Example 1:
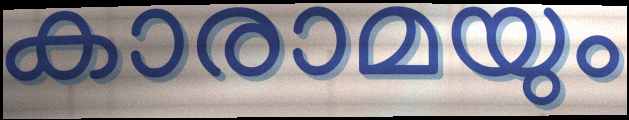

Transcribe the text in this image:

കാരാമയും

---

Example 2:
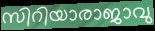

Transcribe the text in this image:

സിറിയാരാജാവു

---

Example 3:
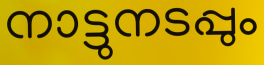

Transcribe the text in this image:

നാട്ടുനടപ്പും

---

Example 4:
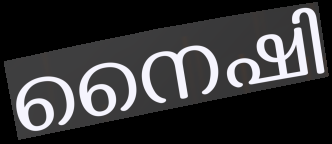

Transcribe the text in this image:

നൈഷി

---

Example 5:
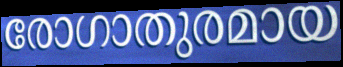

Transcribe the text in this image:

രോഗാതുരമായ